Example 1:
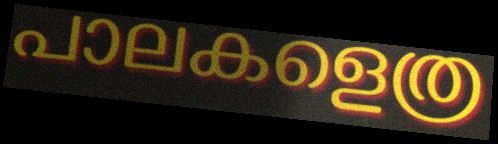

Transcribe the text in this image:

പാലകളെത്ര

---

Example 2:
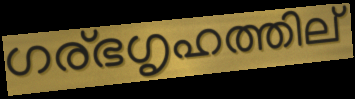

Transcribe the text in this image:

ഗര്ഭഗൃഹത്തില്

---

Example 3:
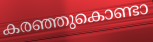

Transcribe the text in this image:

കരഞ്ഞുകൊണ്ടാ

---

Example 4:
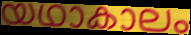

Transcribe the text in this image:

യഥാകാലം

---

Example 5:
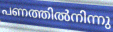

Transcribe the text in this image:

പണത്തിൽനിന്നു